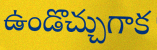
ఉండొచ్చుగాక